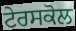
ਟੇਰਸਕੋਲ